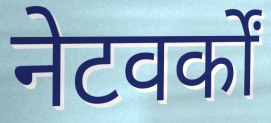
नेटवर्कों